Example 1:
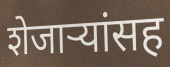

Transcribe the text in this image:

शेजाऱ्यांसह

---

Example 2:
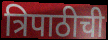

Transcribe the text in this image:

त्रिपाठीची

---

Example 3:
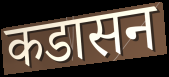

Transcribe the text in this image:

कडासन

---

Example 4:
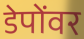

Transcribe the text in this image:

डेपोंवर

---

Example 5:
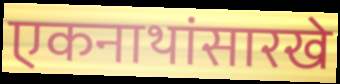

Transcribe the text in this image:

एकनाथांसारखे